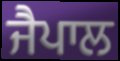
ਜੈਪਾਲ